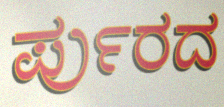
ರ್ಪುರದ